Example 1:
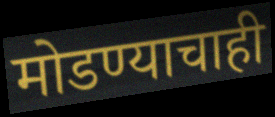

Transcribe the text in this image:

मोडण्याचाही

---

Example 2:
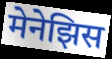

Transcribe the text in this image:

मेनेझिस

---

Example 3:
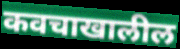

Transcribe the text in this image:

कवचाखालील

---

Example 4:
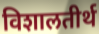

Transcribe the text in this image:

विशालतीर्थ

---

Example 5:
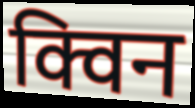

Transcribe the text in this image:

क्विन